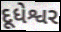
દૂધેશ્વર